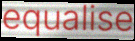
equalise